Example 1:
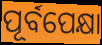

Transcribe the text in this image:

ପୂର୍ବପେକ୍ଷା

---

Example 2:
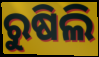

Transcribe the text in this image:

ରୁଷିଲି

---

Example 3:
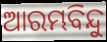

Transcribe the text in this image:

ଆରମ୍ଭବିନ୍ଦୁ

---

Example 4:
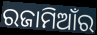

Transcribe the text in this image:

ରଜାମିଆଁର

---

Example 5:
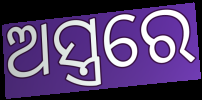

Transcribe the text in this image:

ଅସ୍ତ୍ରରେ